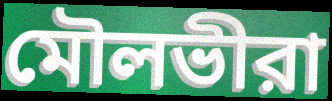
মৌলভীরা